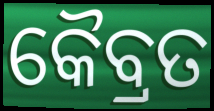
କୈବ୍ରତ